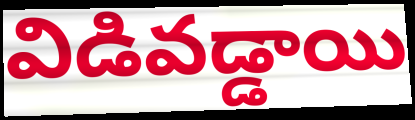
విడివడ్డాయి